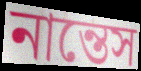
নান্তেস